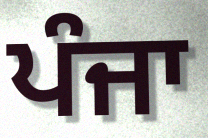
ਪੰਜਾ